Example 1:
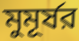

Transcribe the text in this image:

মুমূর্ষর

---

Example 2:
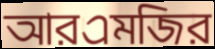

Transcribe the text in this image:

আরএমজির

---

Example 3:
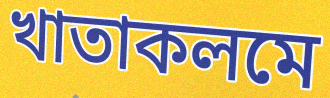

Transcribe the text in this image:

খাতাকলমে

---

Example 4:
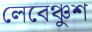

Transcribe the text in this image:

লেবেঞ্চুশ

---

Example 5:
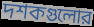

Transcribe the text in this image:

দশকগুলোর